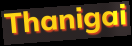
Thanigai